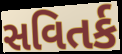
સવિતર્ક